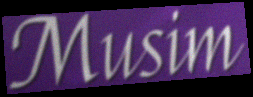
Musim